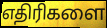
எதிரிகளை